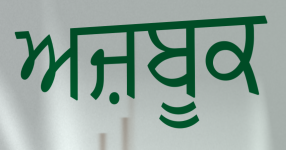
ਅਜ਼ਬੂਕ